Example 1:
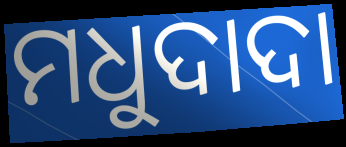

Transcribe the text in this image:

ମଧୁଦାଦା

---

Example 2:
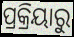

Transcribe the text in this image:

ପ୍ରକ୍ରିୟାରୁ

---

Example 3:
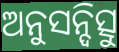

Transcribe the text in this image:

ଅନୁସନ୍ଦିତ୍ସୁ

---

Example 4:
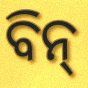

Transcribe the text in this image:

ବିନ୍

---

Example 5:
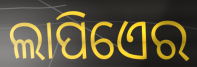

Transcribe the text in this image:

ଲାପିଏେର